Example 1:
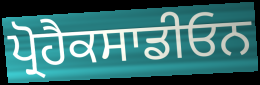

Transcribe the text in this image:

ਪ੍ਰੋਹੈਕਸਾਡੀਓਨ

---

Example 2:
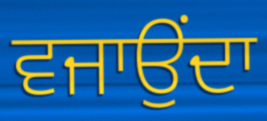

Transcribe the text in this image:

ਵਜਾਉਂਦਾ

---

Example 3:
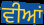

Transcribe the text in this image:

ਵੀਆਂ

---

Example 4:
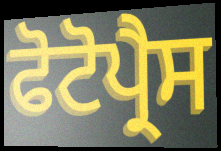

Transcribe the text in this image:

ਫੋਟੋਪ੍ਰੈਸ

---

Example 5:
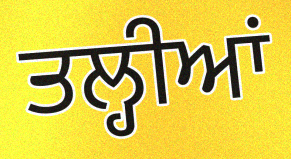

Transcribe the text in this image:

ਤਲ੍ਹੀਆਂ